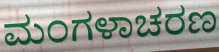
ಮಂಗಳಾಚರಣ